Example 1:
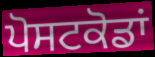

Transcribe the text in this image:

ਪੋਸਟਕੋਡਾਂ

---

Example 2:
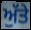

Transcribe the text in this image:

ਅੁੱਤੇ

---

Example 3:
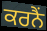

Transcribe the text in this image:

ਕਰਨੈਂ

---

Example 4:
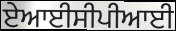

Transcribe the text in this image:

ਏਆਈਸੀਪੀਆਈ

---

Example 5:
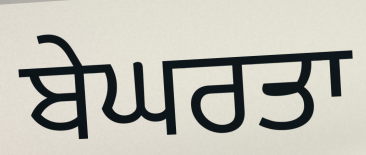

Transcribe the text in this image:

ਬੇਘਰਤਾ